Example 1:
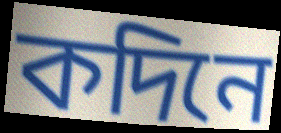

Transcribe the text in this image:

কদিনে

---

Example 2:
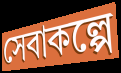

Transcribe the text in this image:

সেবাকল্পে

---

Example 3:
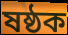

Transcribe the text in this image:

ষষ্ঠক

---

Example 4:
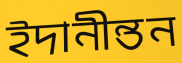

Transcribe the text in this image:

ইদানীন্তন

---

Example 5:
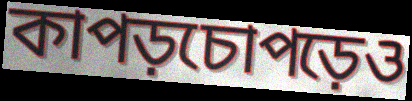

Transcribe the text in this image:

কাপড়চোপড়েও